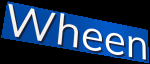
Wheen